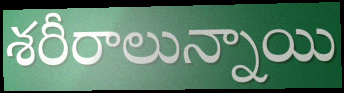
శరీరాలున్నాయి